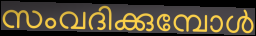
സംവദിക്കുമ്പോൾ